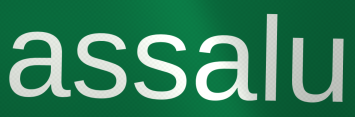
assalu